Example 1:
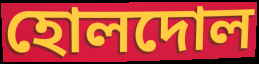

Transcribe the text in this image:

হোলদোল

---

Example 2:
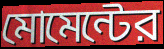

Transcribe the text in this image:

মোমেন্টের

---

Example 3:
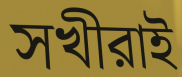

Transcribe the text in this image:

সখীরাই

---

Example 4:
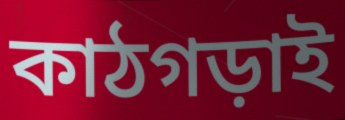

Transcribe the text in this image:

কাঠগড়াই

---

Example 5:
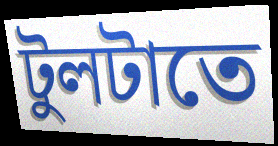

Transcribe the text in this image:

টুলটাতে